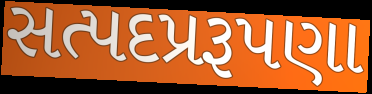
સત્પદપ્રરૂપણા